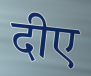
दीए